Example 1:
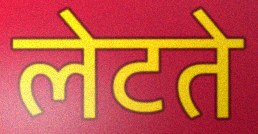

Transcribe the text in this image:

लेटते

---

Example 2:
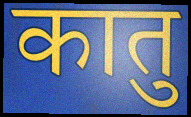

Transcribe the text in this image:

कातु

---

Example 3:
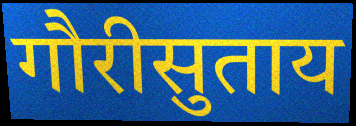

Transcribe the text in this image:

गौरीसुताय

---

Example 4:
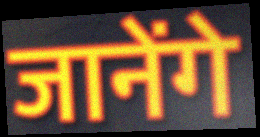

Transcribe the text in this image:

जानेंगे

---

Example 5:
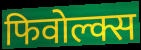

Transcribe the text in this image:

फिवोल्क्स